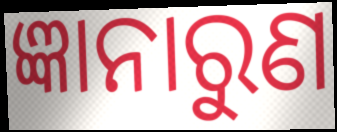
ଜ୍ଞାନାରୁଣ